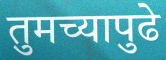
तुमच्यापुढे